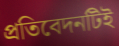
প্রতিবেদনটিই